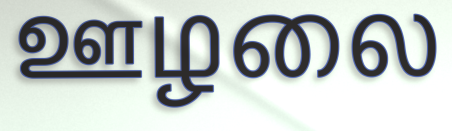
ஊழலை